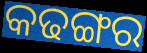
କଢଙ୍ଗର